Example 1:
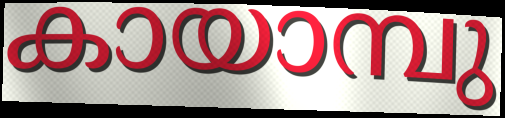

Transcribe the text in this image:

കായാമ്പു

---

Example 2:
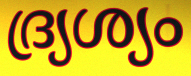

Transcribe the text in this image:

ദ്ര്യശ്യം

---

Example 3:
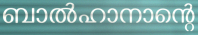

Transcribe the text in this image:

ബാൽഹാനാന്റെ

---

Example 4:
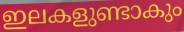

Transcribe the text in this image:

ഇലകളുണ്ടാകും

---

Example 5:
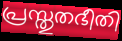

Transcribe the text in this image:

പ്രസ്തുതഭീതി